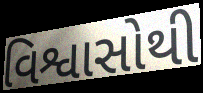
વિશ્વાસોથી